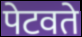
पेटवते